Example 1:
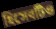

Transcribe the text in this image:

হিসেবটিও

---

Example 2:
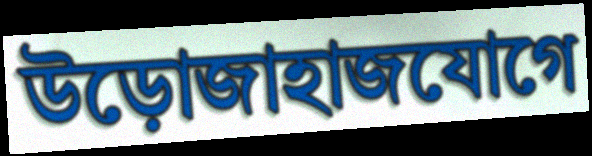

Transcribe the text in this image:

উড়োজাহাজযোগে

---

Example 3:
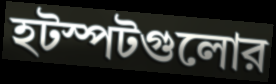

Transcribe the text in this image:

হটস্পটগুলোর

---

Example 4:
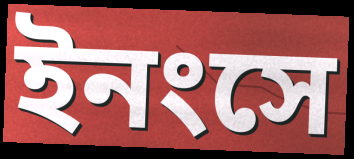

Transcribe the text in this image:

ইনংসে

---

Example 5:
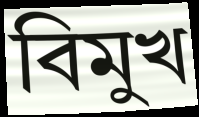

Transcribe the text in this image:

বিমুখ